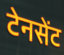
टेनसेंट